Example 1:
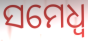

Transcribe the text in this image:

ସମେଧ୍ୱ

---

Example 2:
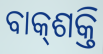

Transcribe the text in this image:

ବାକ୍‍ଶକ୍ତି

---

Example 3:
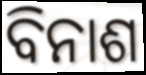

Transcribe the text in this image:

ବିନାଶ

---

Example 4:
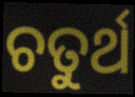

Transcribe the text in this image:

ଚତୁର୍ଥ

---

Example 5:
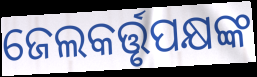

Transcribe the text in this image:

ଜେଲକର୍ତ୍ତୃପକ୍ଷଙ୍କ